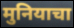
मुनियाचा